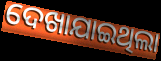
ଦେଖାଯାଇଥିଲା